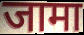
जामा